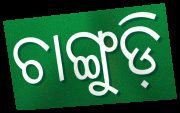
ଚାଙ୍ଗୁଡ଼ି